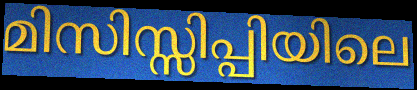
മിസിസ്സിപ്പിയിലെ